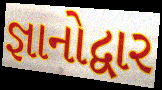
જ્ઞાનોદ્વાર